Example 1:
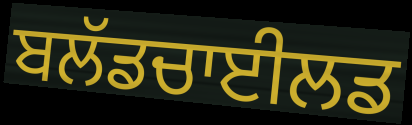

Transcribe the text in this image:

ਬਲੱਡਚਾਈਲਡ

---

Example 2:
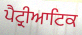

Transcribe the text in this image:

ਪੈਟ੍ਰੀਆਟਿਕ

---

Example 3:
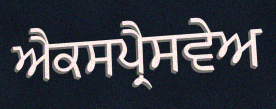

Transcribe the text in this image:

ਐਕਸਪ੍ਰੈਸਵੇਅ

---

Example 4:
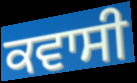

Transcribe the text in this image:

ਕਵਾਸੀ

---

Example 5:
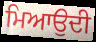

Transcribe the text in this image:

ਮਿਆਉਦੀ